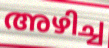
അഴിച്ച